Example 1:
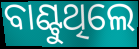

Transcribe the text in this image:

ବାଣ୍ଟୁଥିଲେ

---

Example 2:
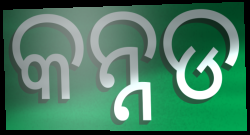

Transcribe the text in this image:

କନ୍ନଡ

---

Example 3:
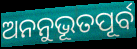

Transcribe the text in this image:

ଅନନୁଭୂତପୂର୍ବ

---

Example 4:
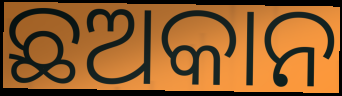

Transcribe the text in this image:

ଛଅକାନ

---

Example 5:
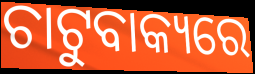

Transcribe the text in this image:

ଚାଟୁବାକ୍ୟରେ